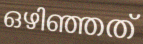
ഒഴിഞ്ഞത്